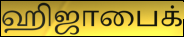
ஹிஜாபைக்